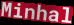
Minhal